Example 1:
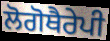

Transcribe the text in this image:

ਲੋਗੋਥੈਰੇਪੀ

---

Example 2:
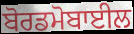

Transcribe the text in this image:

ਬੋਰਡਮੋਬਾਈਲ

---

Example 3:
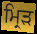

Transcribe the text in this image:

ਮ੍ਰਿੜ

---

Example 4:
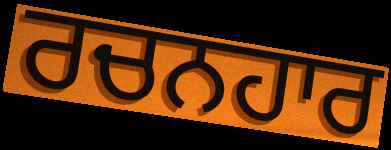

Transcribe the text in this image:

ਰਚਨਹਾਰ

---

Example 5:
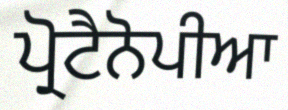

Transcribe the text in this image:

ਪ੍ਰੋਟੈਨੋਪੀਆ